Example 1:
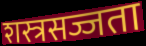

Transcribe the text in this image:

शस्त्रसज्जता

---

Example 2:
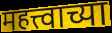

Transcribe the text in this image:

महत्त्वाच्या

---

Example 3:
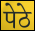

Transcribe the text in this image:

पेठे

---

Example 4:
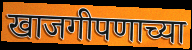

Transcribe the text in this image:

खाजगीपणाच्या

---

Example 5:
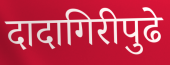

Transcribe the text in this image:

दादागिरीपुढे